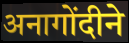
अनागोंदीने